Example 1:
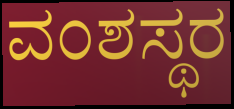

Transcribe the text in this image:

ವಂಶಸ್ಥರ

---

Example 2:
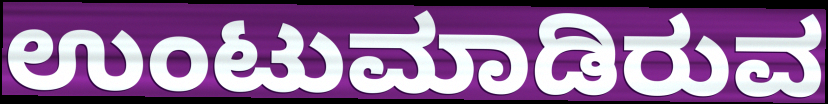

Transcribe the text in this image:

ಉಂಟುಮಾಡಿರುವ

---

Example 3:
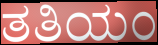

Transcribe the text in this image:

ತತಿಯಂ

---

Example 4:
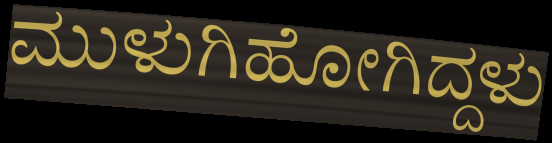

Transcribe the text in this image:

ಮುಳುಗಿಹೋಗಿದ್ದಳು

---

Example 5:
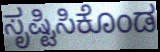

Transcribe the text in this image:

ಸೃಷ್ಟಿಸಿಕೊಂಡ